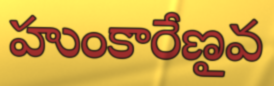
హుంకారేణౖవ